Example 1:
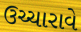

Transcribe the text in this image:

ઉચ્ચારાવે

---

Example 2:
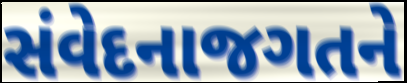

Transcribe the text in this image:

સંવેદનાજગતને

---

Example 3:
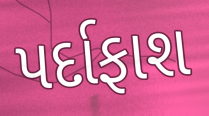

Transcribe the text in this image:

પર્દાફાશ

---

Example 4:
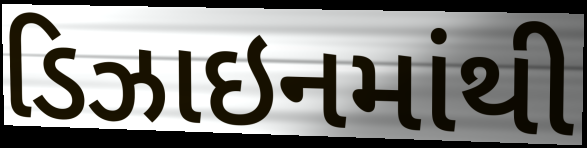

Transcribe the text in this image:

ડિઝાઇનમાંથી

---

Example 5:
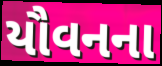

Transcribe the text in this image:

યૌવનના